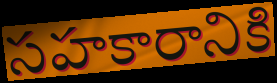
సహకారానికి